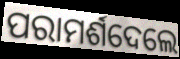
ପରାମର୍ଶଦେଲେ